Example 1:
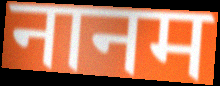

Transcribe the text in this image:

नानम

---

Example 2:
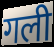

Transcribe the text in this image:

गली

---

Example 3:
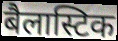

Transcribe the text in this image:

बैलास्टिक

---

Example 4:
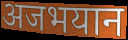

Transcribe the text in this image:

अजभयान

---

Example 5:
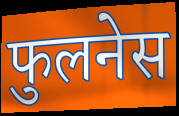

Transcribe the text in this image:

फुलनेस